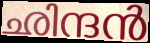
ഛിന്ദൻ